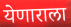
येणाराला